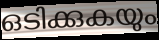
ഒടിക്കുകയും